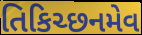
તિકિચ્છનમેવ